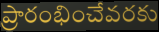
ప్రారంభించేవరకు